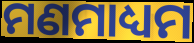
ମଣମାଧ୍ୟମ